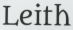
Leith